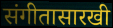
संगीतासारखी